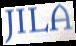
JILA